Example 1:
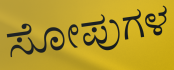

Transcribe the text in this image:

ಸೋಪುಗಳ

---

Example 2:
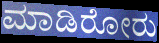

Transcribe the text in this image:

ಮಾಡಿರೋರು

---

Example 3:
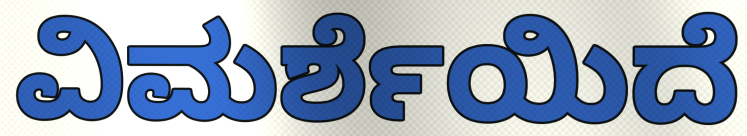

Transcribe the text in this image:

ವಿಮರ್ಶೆಯಿದೆ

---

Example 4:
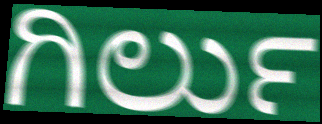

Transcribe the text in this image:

ಗಿರ್ಲು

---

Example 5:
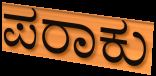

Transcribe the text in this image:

ಪರಾಕು